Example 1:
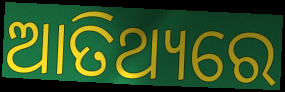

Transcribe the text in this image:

ଆତିଥ୍ୟରେ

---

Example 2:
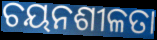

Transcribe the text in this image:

ଚୟନଶୀଳତା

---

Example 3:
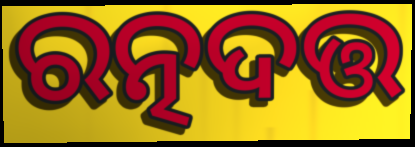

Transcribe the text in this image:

ରତ୍ନଦତ୍ତ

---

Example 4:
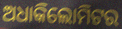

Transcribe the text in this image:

ଅଧାକିଲୋମିଟର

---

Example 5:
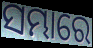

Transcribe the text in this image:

ସମ୍ଭାରେ